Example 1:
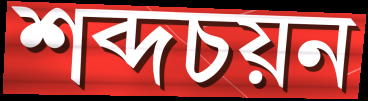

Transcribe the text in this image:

শব্দচয়ন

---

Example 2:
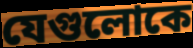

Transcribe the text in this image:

যেগুলোকে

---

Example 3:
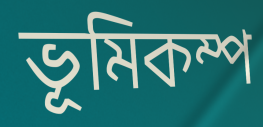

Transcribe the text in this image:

ভূমিকম্প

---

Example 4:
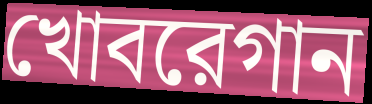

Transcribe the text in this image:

খোবরেগান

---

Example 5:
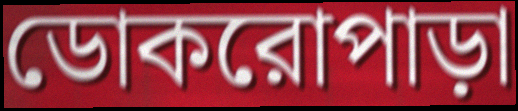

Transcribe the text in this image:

ডোকরোপাড়া